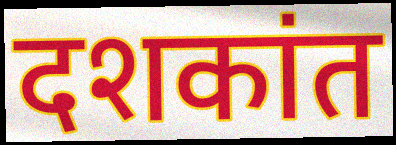
दशकांत